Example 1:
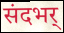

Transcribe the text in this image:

संदभर्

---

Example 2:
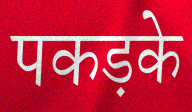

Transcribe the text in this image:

पकड़के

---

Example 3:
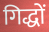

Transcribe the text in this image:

गिद्धों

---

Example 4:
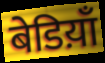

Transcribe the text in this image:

बेडिय़ाँ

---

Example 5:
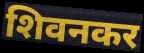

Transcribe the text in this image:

शिवनकर